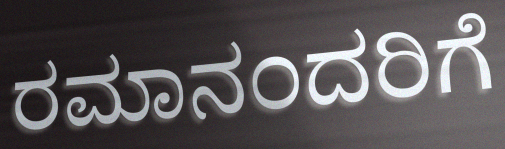
ರಮಾನಂದರಿಗೆ